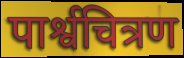
पार्श्वचित्रण